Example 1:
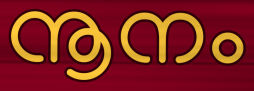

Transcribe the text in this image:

നൂനം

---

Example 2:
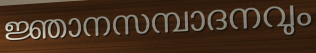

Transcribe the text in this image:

ജ്ഞാനസമ്പാദനവും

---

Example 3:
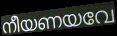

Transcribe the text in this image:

നീയണയവേ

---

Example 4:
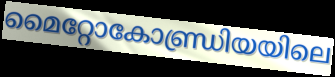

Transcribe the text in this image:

മൈറ്റോകോണ്ഡ്രിയയിലെ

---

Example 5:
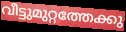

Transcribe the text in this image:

വീട്ടുമുറ്റത്തേക്കു